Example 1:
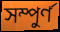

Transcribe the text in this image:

সম্পুৰ্ণ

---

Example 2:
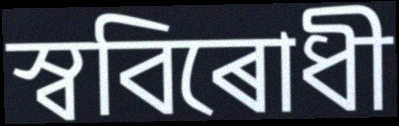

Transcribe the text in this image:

স্ববিৰোধী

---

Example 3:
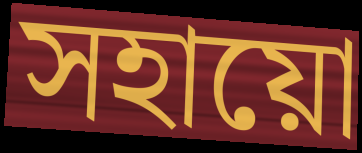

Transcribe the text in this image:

সহায়ো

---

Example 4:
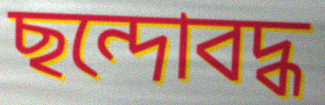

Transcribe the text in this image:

ছন্দোবদ্ধ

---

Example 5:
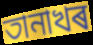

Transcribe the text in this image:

তানাখৰ